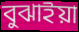
বুঝাইয়া